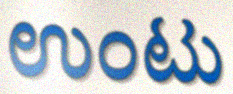
ಉಂಟು